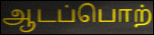
ஆடப்பொற்